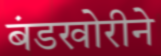
बंडखोरीने